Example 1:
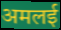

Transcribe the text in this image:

अमलई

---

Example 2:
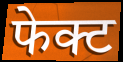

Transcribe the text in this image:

फेक्ट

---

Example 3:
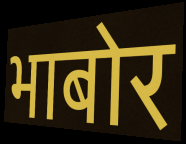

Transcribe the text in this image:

भाबोर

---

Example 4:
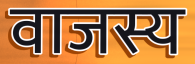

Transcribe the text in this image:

वाजस्य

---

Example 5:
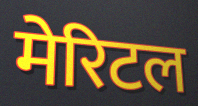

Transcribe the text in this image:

मेरिटल